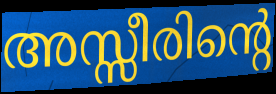
അസ്സീരിന്റെ